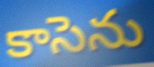
కాసెను